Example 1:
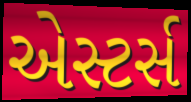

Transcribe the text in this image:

એસ્ટર્સ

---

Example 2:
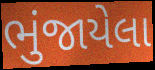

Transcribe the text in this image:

ભુંજાયેલા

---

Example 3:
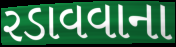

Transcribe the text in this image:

રડાવવાના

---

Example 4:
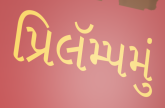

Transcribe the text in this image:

પ્રિલૅમ્પમું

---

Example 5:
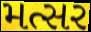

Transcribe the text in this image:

મત્સર